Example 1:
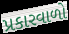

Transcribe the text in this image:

પ્રકારવાળો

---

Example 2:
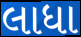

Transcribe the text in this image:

લાધા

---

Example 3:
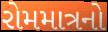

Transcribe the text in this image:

રોમમાત્રનો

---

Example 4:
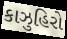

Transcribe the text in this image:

કાઝુહિરો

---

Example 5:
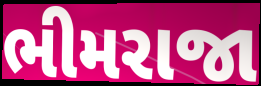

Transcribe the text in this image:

ભીમરાજા